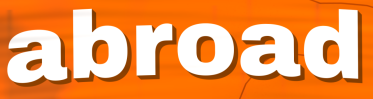
abroad